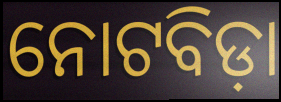
ନୋଟବିଡ଼ା